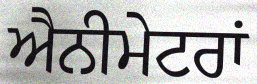
ਐਨੀਮੇਟਰਾਂ